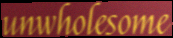
unwholesome